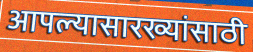
आपल्यासारख्यांसाठी